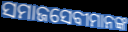
ସମାଜସେବୀମାନଙ୍କ